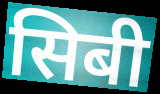
सिबी